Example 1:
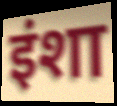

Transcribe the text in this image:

इंशा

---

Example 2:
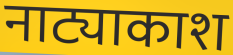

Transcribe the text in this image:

नाट्याकाश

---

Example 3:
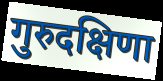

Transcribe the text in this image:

गुरुदक्षिणा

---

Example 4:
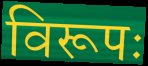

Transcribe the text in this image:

विरूपः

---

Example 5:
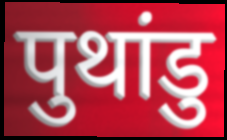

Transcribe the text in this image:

पुथांडु